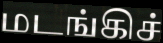
மடங்கிச்